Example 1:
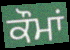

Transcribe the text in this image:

ਕੌਮਾਂ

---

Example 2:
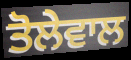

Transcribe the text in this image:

ਤੋਲੇਵਾਲ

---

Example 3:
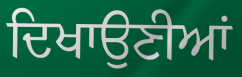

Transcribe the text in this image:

ਦਿਖਾਉਣੀਆਂ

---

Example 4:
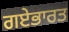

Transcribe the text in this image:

ਗਏਭਾਰਤ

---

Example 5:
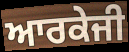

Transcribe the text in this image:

ਆਰਕੇਜੀ